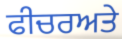
ਫੀਚਰਅਤੇ